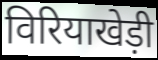
विरियाखेड़ी